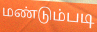
மண்டும்படி